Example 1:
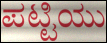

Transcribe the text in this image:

ಪಟ್ಟಿಯು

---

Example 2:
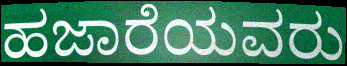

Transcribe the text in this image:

ಹಜಾರೆಯವರು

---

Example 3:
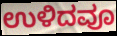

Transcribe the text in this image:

ಉಳಿದವೂ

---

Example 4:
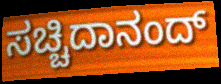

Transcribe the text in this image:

ಸಚ್ಚಿದಾನಂದ್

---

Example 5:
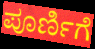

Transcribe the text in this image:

ಪೂರ್ಣಿಗೆ